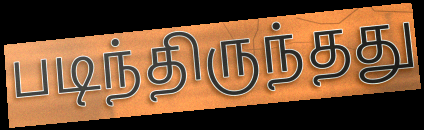
படிந்திருந்தது